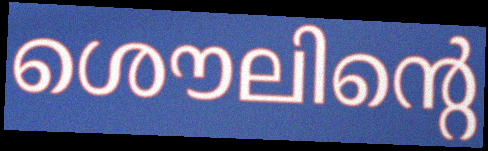
ശൌലിന്റെ